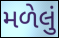
મળેલું